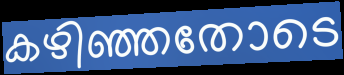
കഴിഞ്ഞതോടെ